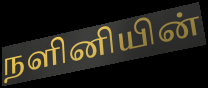
நளினியின்